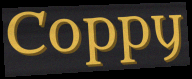
Coppy